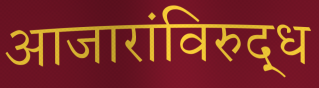
आजारांविरुद्ध